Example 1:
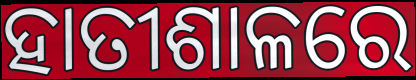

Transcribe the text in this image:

ହାତୀଶାଳରେ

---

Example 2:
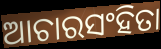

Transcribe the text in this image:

ଆଚାରସଂହିତା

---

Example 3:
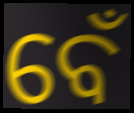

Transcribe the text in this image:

ବେଁ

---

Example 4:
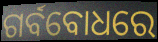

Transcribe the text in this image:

ଗର୍ବବୋଧରେ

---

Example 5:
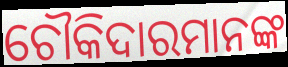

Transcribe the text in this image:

ଚୌକିଦାରମାନଙ୍କ